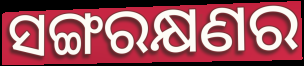
ସଙ୍ଗରକ୍ଷଣର